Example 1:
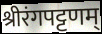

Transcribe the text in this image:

श्रीरंगपट्टणम्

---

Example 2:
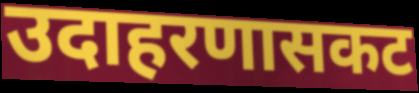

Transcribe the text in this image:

उदाहरणासकट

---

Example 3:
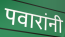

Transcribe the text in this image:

पवारांनी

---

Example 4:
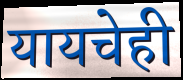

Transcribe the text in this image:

यायचेही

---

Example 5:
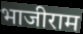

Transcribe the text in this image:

भाजीराम